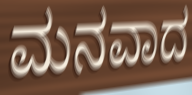
ಮನವಾದ